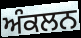
ਅੰਕਲਨ